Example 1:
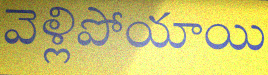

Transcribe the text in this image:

వెళ్లిపోయాయి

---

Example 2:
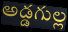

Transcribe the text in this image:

అడ్డగుల్ల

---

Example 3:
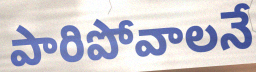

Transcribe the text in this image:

పారిపోవాలనే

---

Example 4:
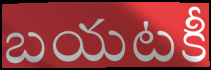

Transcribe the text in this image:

బయటకీ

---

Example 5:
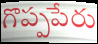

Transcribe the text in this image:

గొప్పపేరు